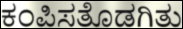
ಕಂಪಿಸತೊಡಗಿತು